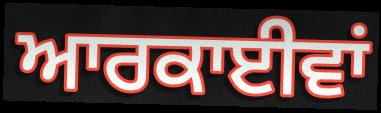
ਆਰਕਾਈਵਾਂ